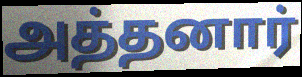
அத்தனார்